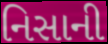
નિસાની